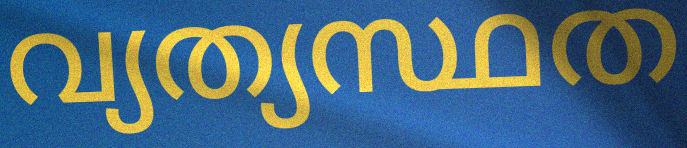
വ്യത്യസ്ഥത